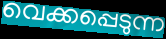
വെക്കപ്പെടുന്ന